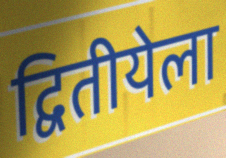
द्वितीयेला